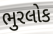
ભુરલોક